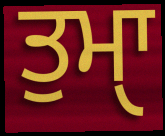
ਤੁਮਾੑ